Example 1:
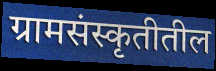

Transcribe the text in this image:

ग्रामसंस्कृतीतील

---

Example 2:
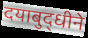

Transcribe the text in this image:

दयाबुद्धीने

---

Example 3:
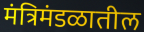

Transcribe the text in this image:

मंत्रिमंडळातील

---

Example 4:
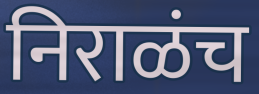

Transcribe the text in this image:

निराळंच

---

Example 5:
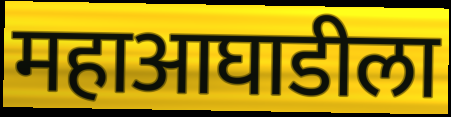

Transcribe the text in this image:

महाआघाडीला